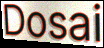
Dosai